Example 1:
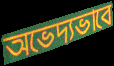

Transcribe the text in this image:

অভেদ্যভাবে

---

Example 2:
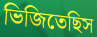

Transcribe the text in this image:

ভিজিতেছিস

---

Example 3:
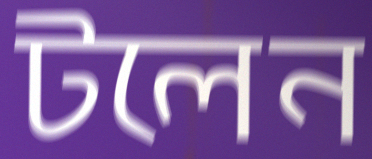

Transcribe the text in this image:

টলেন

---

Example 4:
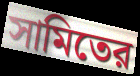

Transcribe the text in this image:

সামিতের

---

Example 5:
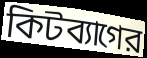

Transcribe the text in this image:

কিটব্যাগের